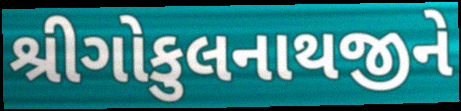
શ્રીગોકુલનાથજીને